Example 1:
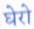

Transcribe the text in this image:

घेरो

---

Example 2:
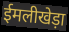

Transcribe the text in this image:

ईमलीखेड़ा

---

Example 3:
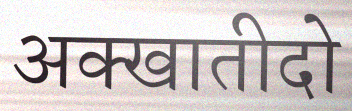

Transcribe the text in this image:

अक्खातीदो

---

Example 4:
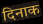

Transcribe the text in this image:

दिनाक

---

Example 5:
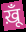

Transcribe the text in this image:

ख़ूँ